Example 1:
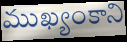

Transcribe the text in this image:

ముఖ్యంకాని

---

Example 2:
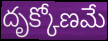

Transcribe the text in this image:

దృక్కోణమే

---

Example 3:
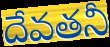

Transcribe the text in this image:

దేవతనీ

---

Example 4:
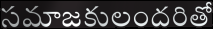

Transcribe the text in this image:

సమాజకులందరితో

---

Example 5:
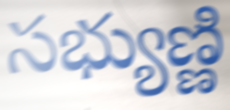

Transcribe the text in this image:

సభ్యుణ్ణి